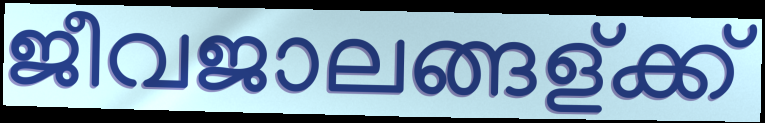
ജീവജാലങ്ങള്ക്ക്